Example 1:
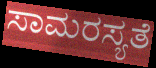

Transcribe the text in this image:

ಸಾಮರಸ್ಯತೆ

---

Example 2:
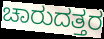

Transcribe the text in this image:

ಚಾರುದತ್ತರ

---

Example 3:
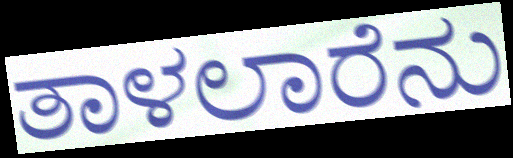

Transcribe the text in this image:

ತಾಳಲಾರೆನು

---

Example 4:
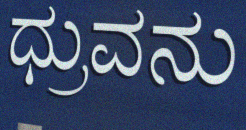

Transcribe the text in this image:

ಧ್ರುವನು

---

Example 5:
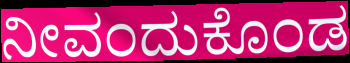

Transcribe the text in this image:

ನೀವಂದುಕೊಂಡ